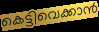
കെട്ടിവെക്കാൻ